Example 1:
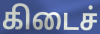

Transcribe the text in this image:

கிடைச்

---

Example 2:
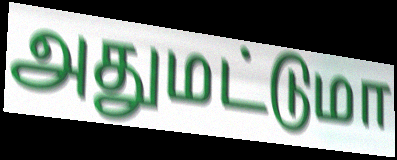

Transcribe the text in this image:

அதுமட்டுமா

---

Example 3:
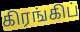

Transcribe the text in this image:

கிரங்கிப்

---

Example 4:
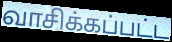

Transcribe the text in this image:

வாசிக்கப்பட்ட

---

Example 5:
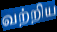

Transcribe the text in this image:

வற்றிய